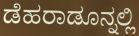
ಡೆಹರಾಡೂನ್ನಲ್ಲಿ